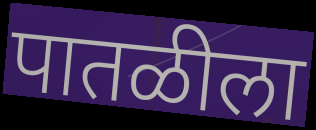
पातळीला